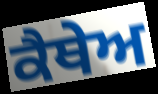
ਕੈਥੇਅ